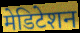
मेडिटेशन